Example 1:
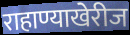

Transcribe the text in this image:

राहाण्याखेरीज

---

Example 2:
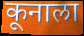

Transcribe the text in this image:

कूनाला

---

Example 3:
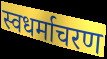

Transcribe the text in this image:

स्वधर्माचरण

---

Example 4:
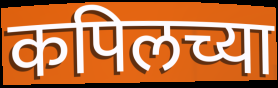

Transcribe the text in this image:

कपिलच्या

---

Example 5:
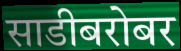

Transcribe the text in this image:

साडीबरोबर